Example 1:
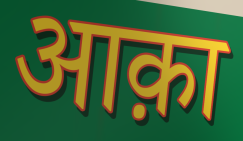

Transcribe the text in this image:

आक़ा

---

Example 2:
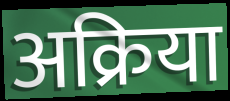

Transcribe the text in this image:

अक्रिया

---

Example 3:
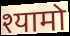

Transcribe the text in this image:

श्यामो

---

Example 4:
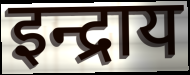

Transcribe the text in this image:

इन्द्राय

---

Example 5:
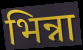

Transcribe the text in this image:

भिन्ना